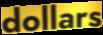
dollars